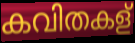
കവിതകള്